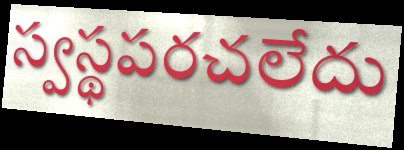
స్వస్థపరచలేదు